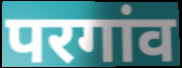
परगांव